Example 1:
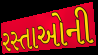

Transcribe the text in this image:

રસ્તાઓની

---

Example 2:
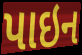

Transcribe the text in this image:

પાઇન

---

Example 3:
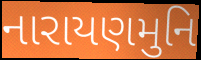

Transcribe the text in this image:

નારાયણમુનિ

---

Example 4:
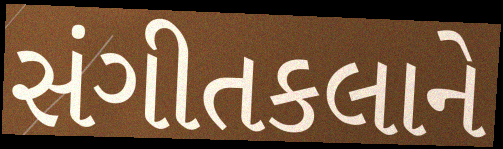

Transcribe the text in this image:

સંગીતકલાને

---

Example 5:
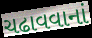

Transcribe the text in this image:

ચઢાવવાનાં